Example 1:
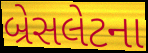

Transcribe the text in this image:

બ્રેસલેટના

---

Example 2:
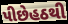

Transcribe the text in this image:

પીછેહઠથી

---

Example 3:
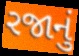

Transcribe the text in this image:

રજાનું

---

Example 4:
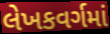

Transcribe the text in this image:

લેખકવર્ગમાં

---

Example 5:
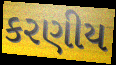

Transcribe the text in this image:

કરણીય